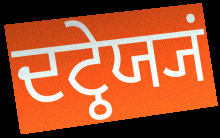
ਦਟ੍ਠੇਯ੍ਯਂ